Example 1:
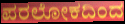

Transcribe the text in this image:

ಪರಲೋಕದಿಂದ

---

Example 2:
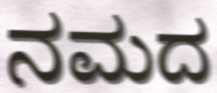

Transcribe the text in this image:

ನಮದ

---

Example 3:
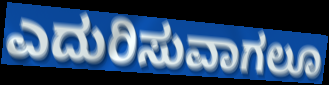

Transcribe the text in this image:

ಎದುರಿಸುವಾಗಲೂ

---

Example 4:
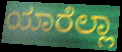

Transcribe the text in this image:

ಯಾರೆಲ್ಲಾ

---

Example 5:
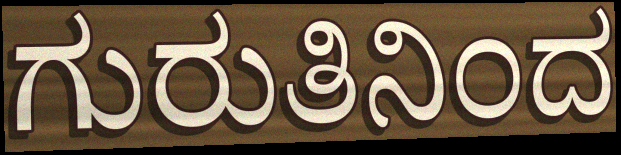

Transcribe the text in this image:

ಗುರುತಿನಿಂದ